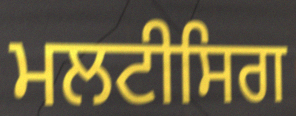
ਮਲਟੀਸਿਗ